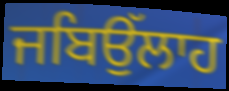
ਜਬਿਉੱਲਾਹ